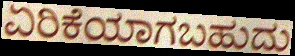
ಏರಿಕೆಯಾಗಬಹುದು